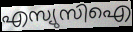
എസ്യുസിഐ